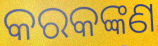
କରକଙ୍କଣ